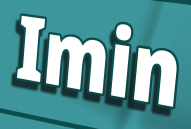
Imin